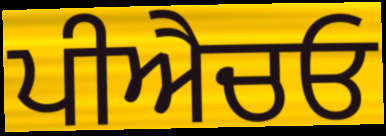
ਪੀਐਚਓ